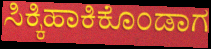
ಸಿಕ್ಕಿಹಾಕಿಕೊಂಡಾಗ